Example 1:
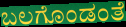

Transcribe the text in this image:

ಬಲಗೊಂಡಂತೆ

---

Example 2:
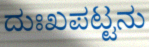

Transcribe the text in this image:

ದುಃಖಪಟ್ಟನು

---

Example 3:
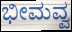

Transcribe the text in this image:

ಭೀಮವ್ವ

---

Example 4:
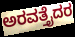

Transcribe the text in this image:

ಅರವತ್ತೈದರ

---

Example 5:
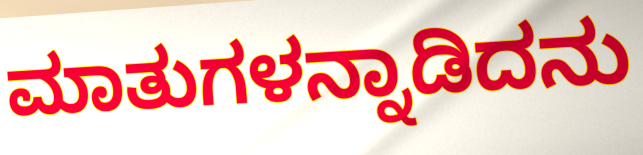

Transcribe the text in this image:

ಮಾತುಗಳನ್ನಾಡಿದನು